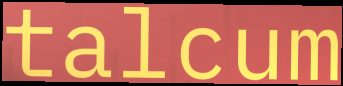
talcum